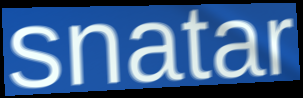
snatar